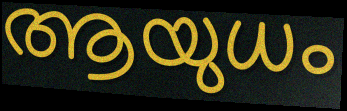
ആയുധം